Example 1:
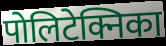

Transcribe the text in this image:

पोलिटेक्निका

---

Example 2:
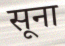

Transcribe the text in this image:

सूना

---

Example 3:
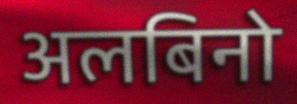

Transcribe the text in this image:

अलबिनो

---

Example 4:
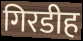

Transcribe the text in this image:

गिरडीह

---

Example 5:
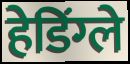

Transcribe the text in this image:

हेडिंग्‍ले